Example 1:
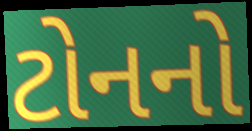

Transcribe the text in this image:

ટોનનો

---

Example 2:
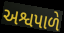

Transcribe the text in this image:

અશ્વપાળે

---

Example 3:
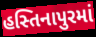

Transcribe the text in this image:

હસ્તિનાપુરમાં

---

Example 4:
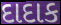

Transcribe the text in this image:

દાદાક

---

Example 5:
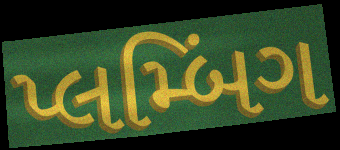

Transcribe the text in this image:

પ્લમ્બિંગ